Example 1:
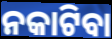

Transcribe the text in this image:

ନକାଟିବା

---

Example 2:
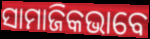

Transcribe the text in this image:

ସାମାଜିକଭାବେ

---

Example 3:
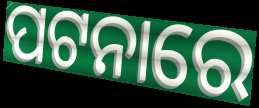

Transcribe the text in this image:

ପଟନାରେ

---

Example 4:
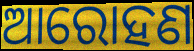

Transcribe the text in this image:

ଆରୋହଣ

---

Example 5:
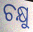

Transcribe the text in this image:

ଚକ୍ଷୁ